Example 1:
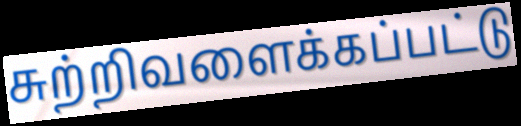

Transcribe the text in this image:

சுற்றிவளைக்கப்பட்டு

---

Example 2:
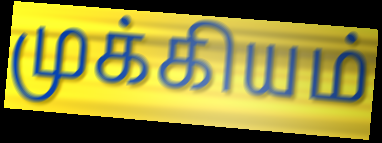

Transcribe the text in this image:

முக்கியம்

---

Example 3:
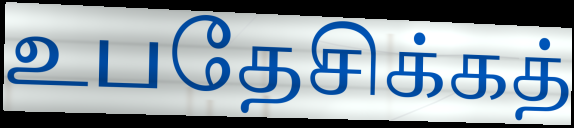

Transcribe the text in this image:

உபதேசிக்கத்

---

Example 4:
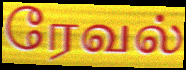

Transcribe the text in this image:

ரேவல்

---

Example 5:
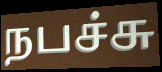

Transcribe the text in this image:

நபச்சு